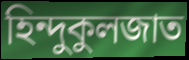
হিন্দুকুলজাত